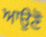
ਆਉਣੋ